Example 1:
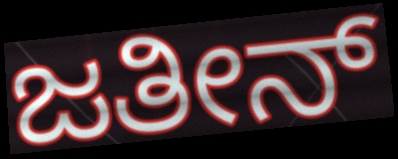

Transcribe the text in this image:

ಜತೀನ್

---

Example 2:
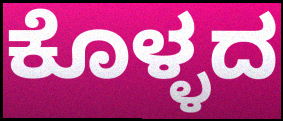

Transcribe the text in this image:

ಕೊಳ್ಳದ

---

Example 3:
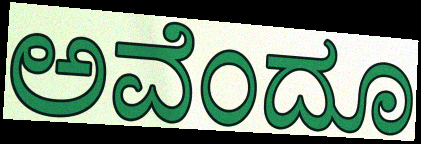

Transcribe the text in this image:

ಅವೆಂದೂ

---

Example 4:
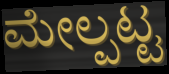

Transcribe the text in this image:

ಮೇಲ್ಪಟ್ಟ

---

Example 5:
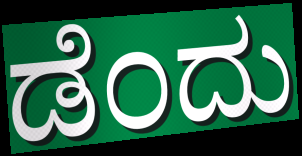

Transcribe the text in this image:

ಡೆಂದು